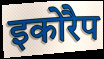
इकोरैप